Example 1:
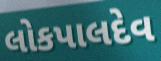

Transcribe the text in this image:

લોકપાલદેવ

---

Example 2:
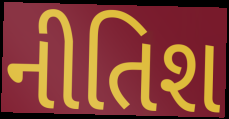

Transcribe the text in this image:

નીતિશ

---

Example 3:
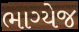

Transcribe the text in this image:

ભાગ્યેજ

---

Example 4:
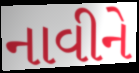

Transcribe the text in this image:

નાવીને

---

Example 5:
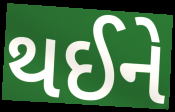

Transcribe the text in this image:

થઈને